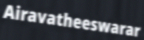
Airavatheeswarar